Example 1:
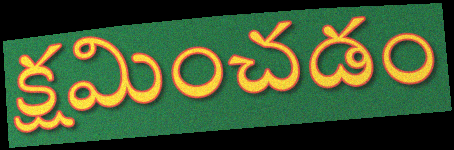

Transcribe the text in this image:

క్షమించడం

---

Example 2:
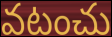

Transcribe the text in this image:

వటంచు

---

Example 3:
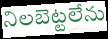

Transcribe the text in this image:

నిలబెట్టలేను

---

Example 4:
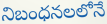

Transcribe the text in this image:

నిబంధనలలోనే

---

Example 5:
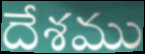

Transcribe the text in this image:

దేశము